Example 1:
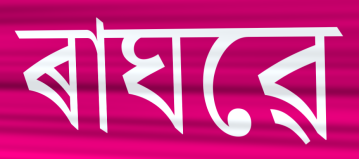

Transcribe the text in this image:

ৰাঘৱে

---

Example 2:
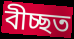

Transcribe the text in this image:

বীচ্ছত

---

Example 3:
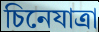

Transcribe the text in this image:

চিনেযাত্ৰা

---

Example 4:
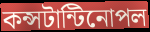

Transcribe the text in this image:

কন্সটান্টিনোপল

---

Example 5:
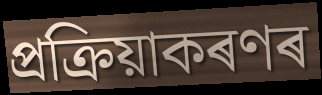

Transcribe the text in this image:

প্ৰক্ৰিয়াকৰণৰ